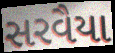
સરવૈયા